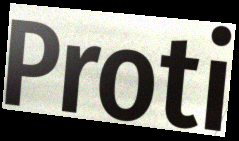
Proti